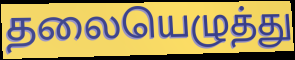
தலையெழுத்து